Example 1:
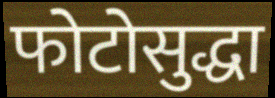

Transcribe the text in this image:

फोटोसुद्धा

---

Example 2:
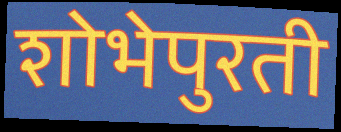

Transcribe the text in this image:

शोभेपुरती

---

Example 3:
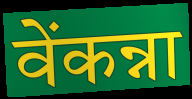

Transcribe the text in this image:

वेंकन्ना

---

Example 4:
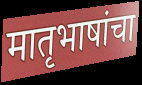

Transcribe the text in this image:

मातृभाषांचा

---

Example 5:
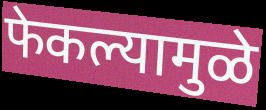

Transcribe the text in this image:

फेकल्यामुळे